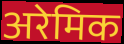
अरेमिक